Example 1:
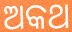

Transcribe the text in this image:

ଅକଥ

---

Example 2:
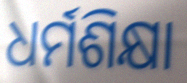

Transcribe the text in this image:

ଧର୍ମଶିକ୍ଷା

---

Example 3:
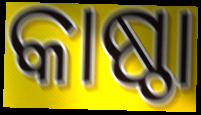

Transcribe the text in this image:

କାଷ୍ଠା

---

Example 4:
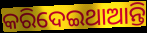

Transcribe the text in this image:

କରିଦେଇଥାଆନ୍ତି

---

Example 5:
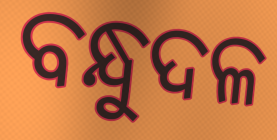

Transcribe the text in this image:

ବନ୍ଧୁଦଳ